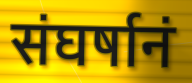
संघर्षानं